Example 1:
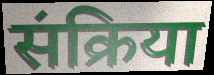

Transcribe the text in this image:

संक्रिया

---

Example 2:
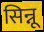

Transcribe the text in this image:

सिन्नू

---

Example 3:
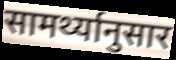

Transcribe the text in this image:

सामर्थ्यानुसार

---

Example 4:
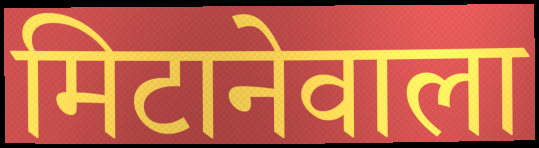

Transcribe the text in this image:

मिटानेवाला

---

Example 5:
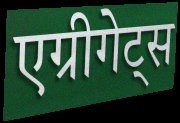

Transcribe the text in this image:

एग्रीगेट्स